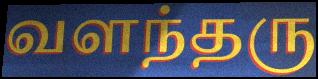
வளந்தரு